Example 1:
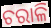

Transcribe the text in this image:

ଚରାଳି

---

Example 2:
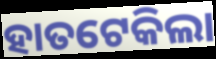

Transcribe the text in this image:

ହାତଟେକିଲା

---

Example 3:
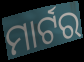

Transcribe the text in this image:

ମାର୍ଟର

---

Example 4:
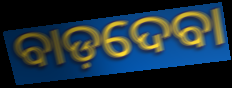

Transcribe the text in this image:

ବାଡ଼ଦେବା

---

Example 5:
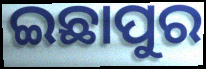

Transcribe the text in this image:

ଇଛାପୁର